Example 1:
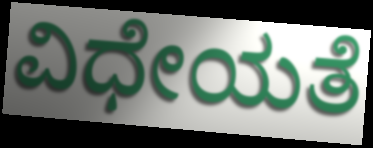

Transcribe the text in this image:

ವಿಧೇಯತೆ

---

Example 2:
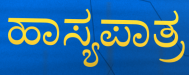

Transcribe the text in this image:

ಹಾಸ್ಯಪಾತ್ರ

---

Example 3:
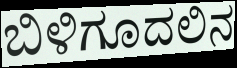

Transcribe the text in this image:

ಬಿಳಿಗೂದಲಿನ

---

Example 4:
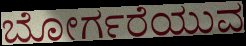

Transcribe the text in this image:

ಬೋರ್ಗರೆಯುವ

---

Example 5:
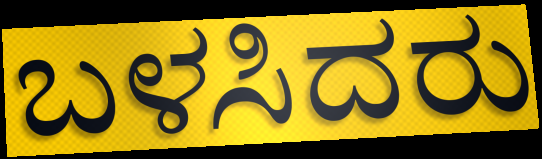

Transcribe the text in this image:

ಬಳಸಿದರು